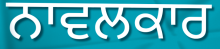
ਨਾਵਲਕਾਰ